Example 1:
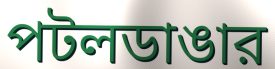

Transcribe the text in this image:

পটলডাঙার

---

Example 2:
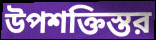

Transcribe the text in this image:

উপশক্তিস্তর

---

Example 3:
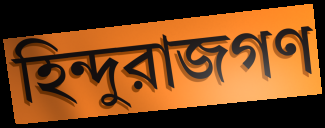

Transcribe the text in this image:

হিন্দুরাজগণ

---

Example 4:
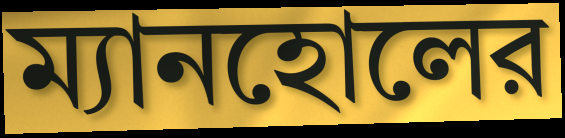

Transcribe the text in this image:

ম্যানহোলের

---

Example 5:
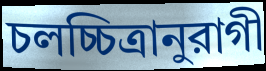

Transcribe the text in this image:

চলচ্চিত্রানুরাগী